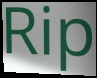
Rip